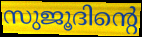
സുജൂദിന്റെ